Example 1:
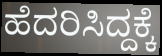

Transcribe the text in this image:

ಹೆದರಿಸಿದ್ದಕ್ಕೆ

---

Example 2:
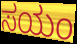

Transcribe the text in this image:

ಸಯಂ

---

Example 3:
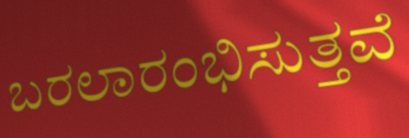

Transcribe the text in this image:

ಬರಲಾರಂಭಿಸುತ್ತವೆ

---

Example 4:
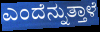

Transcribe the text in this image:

ಎಂದೆನ್ನುತ್ತಾಳೆ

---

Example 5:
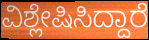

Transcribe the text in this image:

ವಿಶ್ಲೇಷಿಸಿದ್ದಾರೆ